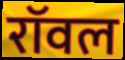
रॉवल